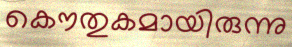
കൌതുകമായിരുന്നു